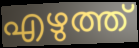
എഴുത്ത്